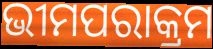
ଭୀମପରାକ୍ରମ